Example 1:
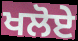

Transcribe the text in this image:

ਖਲੋਏ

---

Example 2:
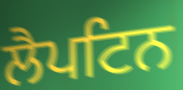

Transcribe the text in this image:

ਲੈਪਟਿਨ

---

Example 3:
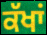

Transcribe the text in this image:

ਕੱਖਾਂ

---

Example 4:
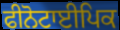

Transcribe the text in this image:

ਫੀਨੋਟਾਈਪਿਕ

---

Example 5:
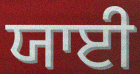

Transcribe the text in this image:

ਯਾਈ